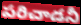
పరిచాడనీ